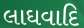
લાઘવાદિ